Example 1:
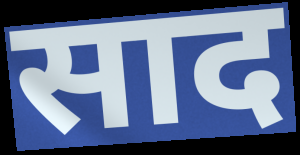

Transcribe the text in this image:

साद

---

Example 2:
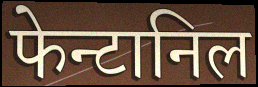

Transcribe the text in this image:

फेन्टानिल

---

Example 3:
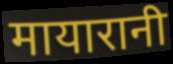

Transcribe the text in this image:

मायारानी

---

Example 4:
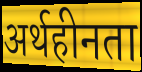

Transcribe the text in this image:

अर्थहीनता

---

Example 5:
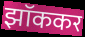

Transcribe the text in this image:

झॉककर